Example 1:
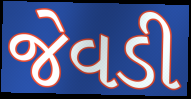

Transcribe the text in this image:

જેવડી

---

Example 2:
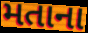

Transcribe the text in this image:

મતાના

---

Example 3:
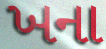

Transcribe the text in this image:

ખના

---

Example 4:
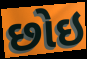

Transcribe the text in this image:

છોઇ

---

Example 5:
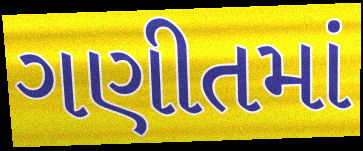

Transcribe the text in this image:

ગણીતમાં